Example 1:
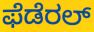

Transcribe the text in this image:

ಫೆಡೆರಲ್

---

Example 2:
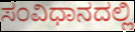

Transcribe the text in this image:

ಸಂವಿಧಾನದಲ್ಲಿ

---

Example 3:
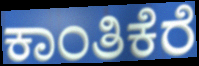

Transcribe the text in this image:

ಕಾಂತಿಕೆರೆ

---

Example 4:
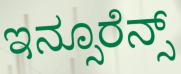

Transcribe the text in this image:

ಇನ್ಸೂರೆನ್ಸ್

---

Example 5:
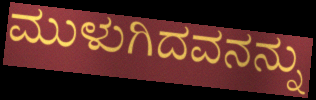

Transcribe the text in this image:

ಮುಳುಗಿದವನನ್ನು